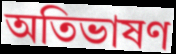
অতিভাষণ